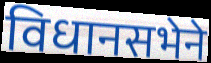
विधानसभेने